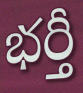
భర్తీ